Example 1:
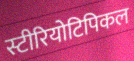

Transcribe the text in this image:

स्टीरियोटिपिकल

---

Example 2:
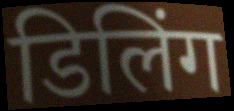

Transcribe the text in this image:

डिलिंग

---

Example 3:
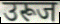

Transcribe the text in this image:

उरूज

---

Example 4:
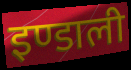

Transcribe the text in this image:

इण्डाली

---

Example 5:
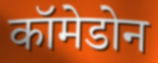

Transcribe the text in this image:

कॉमेडोन